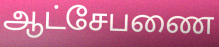
ஆட்சேபணை